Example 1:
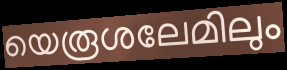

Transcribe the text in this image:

യെരൂശലേമിലും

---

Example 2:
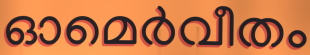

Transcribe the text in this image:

ഓമെർവീതം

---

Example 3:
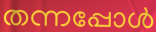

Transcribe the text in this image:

തന്നപ്പോൾ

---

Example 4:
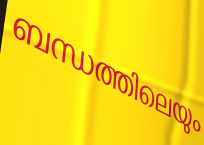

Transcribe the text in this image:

ബന്ധത്തിലെയും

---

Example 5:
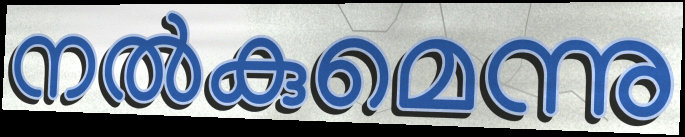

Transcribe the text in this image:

നൽകുമെന്നു